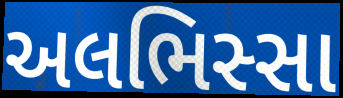
અલભિસ્સા